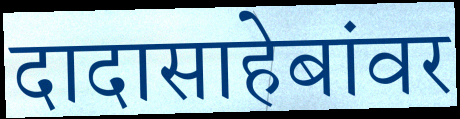
दादासाहेबांवर